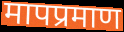
मापप्रमाण